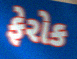
ફેરોક